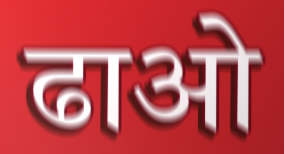
ढाओ